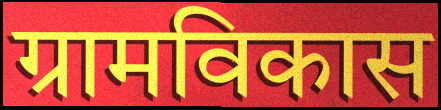
ग्रामविकास